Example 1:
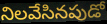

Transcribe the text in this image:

నిలవేసినపుడో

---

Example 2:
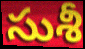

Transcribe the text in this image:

సుశీ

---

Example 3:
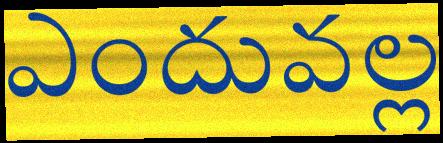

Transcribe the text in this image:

ఎందువల్ల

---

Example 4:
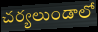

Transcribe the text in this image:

చర్యలుండాలో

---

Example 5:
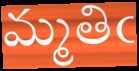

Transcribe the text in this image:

మ్మతిఁ